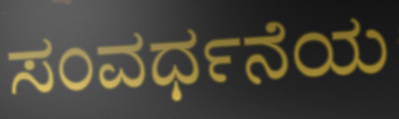
ಸಂವರ್ಧನೆಯ